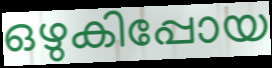
ഒഴുകിപ്പോയ